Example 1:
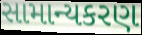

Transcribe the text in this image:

સામાન્યકરણ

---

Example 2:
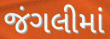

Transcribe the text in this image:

જંગલીમાં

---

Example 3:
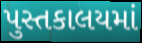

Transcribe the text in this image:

પુસ્તકાલયમાં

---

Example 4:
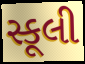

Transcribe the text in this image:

સ્કૂલી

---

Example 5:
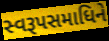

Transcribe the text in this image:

સ્વરૂપસમાધિને